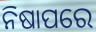
ନିଷାପରେ